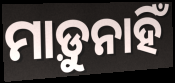
ମାଡ଼ୁନାହିଁ